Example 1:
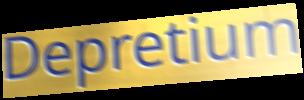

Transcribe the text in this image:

Depretium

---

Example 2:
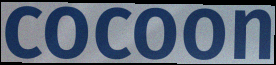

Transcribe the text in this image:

cocoon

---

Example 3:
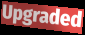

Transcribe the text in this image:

Upgraded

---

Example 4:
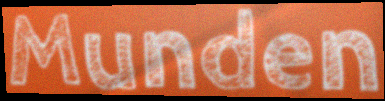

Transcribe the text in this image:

Munden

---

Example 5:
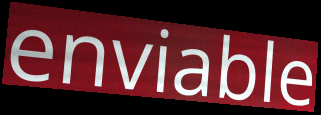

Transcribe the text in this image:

enviable